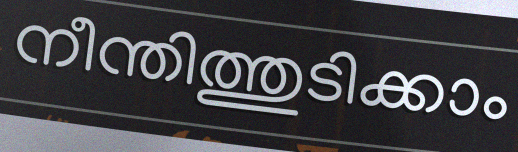
നീന്തിത്തുടിക്കാം